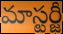
మాస్టర్జీ